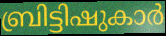
ബ്രിട്ടിഷുകാർ